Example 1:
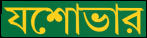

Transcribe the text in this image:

যশোভার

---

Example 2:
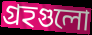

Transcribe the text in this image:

গ্রহগুলো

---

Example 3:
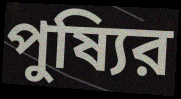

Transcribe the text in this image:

পুষ্যির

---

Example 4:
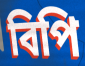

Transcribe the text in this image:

বিপি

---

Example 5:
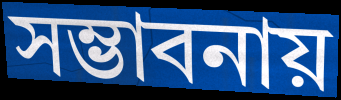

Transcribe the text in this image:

সম্ভাবনায়